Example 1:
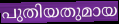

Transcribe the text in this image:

പുതിയതുമായ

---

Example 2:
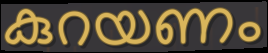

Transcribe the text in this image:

കുറയണം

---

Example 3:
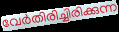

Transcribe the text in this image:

വേർതിരിച്ചിരിക്കുന്ന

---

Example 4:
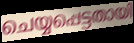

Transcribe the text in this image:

ചെയ്യപ്പെട്ടതായി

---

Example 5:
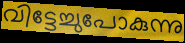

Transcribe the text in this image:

വിട്ടേച്ചുപോകുന്നു